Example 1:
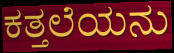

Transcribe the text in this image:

ಕತ್ತಲೆಯನು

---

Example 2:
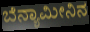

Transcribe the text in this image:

ಬೆನ್ಯಾಮೀನಿನ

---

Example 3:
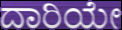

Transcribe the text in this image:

ದಾರಿಯೇ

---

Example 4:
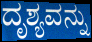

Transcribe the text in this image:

ದೃಶ್ಯವನ್ನು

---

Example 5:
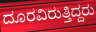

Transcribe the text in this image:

ದೂರವಿರುತ್ತಿದ್ದರು